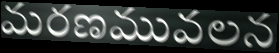
మరణమువలన